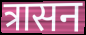
त्रासन